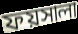
ফয়সালা